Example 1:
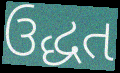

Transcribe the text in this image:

ઉદ્ધત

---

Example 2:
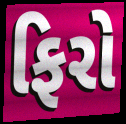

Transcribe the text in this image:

ફિરો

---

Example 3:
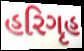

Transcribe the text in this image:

હરિગૃહ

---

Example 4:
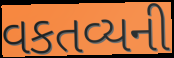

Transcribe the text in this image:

વકતવ્યની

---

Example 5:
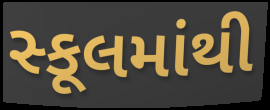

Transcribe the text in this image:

સ્કૂલમાંથી